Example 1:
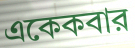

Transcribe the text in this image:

একেকবার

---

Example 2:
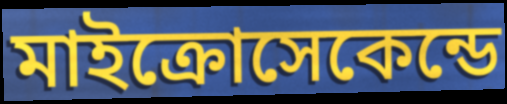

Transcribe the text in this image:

মাইক্রোসেকেন্ডে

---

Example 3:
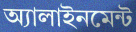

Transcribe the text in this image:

অ্যালাইনমেন্ট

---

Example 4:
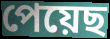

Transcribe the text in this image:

পেয়েছ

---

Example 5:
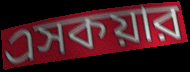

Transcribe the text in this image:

এসকয়ার